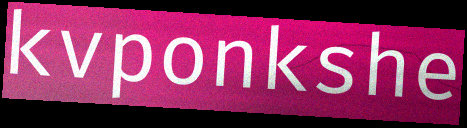
kvponkshe